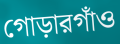
গোড়ারগাঁও